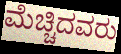
ಮೆಚ್ಚಿದವರು